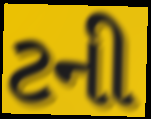
ટની